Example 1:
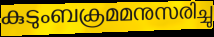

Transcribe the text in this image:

കുടുംബക്രമമനുസരിച്ചു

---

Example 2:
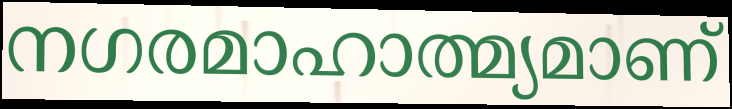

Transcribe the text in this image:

നഗരമാഹാത്മ്യമാണ്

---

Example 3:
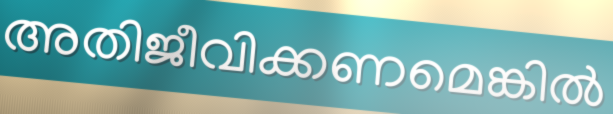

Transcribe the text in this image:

അതിജീവിക്കണമെങ്കിൽ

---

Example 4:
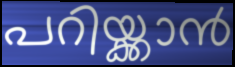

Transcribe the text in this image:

പറിയ്ക്കാൻ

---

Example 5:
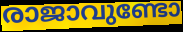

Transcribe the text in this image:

രാജാവുണ്ടോ